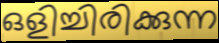
ഒളിച്ചിരിക്കുന്ന